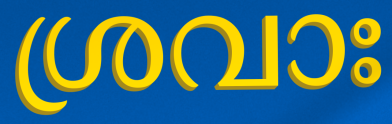
ശ്രവാഃ